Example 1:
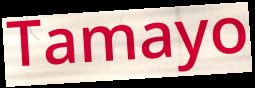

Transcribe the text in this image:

Tamayo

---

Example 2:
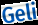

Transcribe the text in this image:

Geli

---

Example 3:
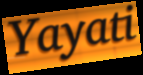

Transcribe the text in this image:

Yayati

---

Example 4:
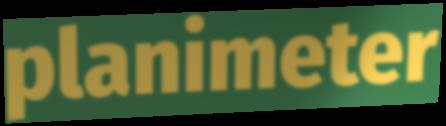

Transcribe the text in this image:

planimeter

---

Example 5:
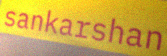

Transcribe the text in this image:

sankarshan